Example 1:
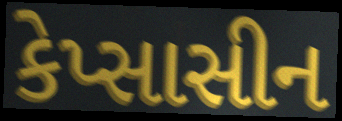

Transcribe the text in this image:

કેપ્સાસીન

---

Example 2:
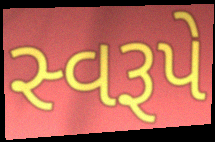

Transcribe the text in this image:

સ્વરૂપે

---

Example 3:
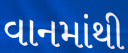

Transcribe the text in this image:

વાનમાંથી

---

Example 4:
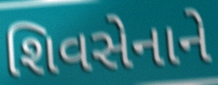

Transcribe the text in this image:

શિવસેનાને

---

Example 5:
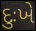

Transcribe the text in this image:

દુઃખે